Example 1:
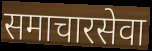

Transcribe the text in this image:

समाचारसेवा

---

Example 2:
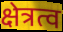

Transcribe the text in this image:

क्षेत्रत्व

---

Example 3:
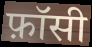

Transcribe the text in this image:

फ़ॉसी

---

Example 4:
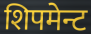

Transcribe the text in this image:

शिपमेन्ट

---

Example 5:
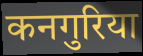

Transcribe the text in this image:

कनगुरिया